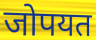
जोपयत